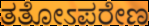
ತತೋಽಪರೇಣ